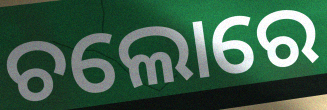
ଚଲୋରେ